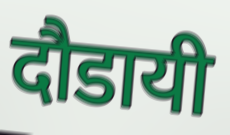
दौडायी